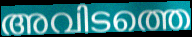
അവിടത്തെ